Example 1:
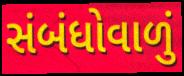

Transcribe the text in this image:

સંબંધોવાળું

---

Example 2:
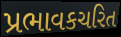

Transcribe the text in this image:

પ્રભાવકચરિત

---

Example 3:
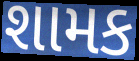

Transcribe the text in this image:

શામક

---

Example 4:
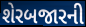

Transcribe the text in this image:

શેરબજારની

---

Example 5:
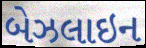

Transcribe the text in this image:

બેઝલાઇન